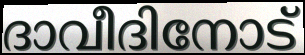
ദാവീദിനോട്